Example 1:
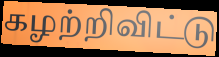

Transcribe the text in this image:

கழற்றிவிட்டு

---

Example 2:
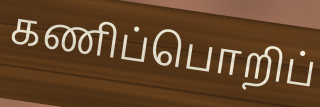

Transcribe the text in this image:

கணிப்பொறிப்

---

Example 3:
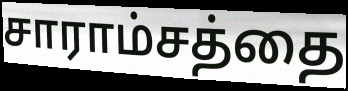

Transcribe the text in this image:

சாராம்சத்தை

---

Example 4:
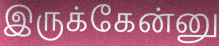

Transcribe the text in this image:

இருக்கேன்னு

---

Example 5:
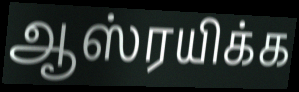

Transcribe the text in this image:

ஆஸ்ரயிக்க